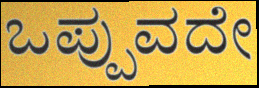
ಒಪ್ಪುವದೇ